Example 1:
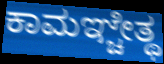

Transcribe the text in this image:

ಕಾಮಞ್ಚೇತ್ಥ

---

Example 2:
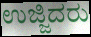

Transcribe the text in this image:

ಉಜ್ಜಿದರು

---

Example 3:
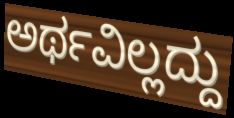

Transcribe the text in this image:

ಅರ್ಥವಿಲ್ಲದ್ದು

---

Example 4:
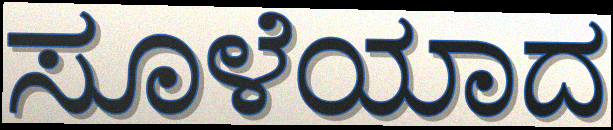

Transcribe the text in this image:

ಸೂಳೆಯಾದ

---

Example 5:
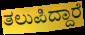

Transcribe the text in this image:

ತಲುಪಿದ್ದಾರೆ